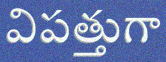
విపత్తుగా